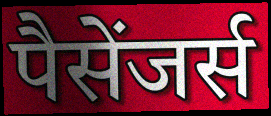
पैसेंजर्स